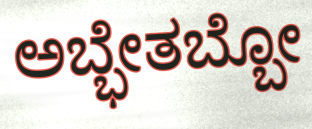
ಅಬ್ಭೇತಬ್ಬೋ